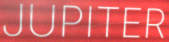
JUPITER